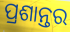
ପ୍ରଶାନ୍ତର